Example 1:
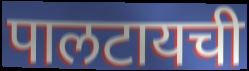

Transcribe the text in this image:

पालटायची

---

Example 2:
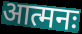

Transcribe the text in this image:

आत्मनः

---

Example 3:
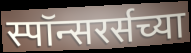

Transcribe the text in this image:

स्पॉन्सरर्सच्या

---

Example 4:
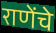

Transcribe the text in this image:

राणेंचे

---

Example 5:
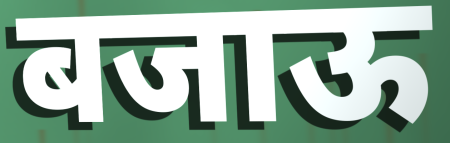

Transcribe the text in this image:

बजाऊ